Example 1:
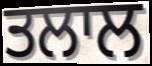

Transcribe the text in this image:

ਤਲਾਲ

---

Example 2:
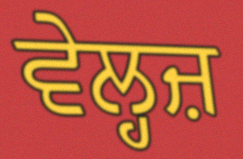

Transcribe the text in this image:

ਵੇਲ੍ਹਜ਼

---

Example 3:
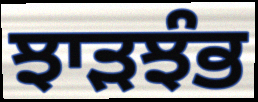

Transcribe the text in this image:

ਝਾੜਝੰਭ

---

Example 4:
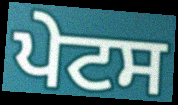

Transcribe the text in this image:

ਪੇਟਸ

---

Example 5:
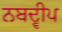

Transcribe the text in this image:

ਨਬਦ੍ਵੀਪ